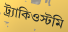
ট্র্যাকিওস্টমি